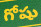
గోషు